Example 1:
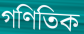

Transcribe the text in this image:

গণিতিক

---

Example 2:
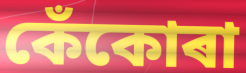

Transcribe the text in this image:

কেঁকোৰা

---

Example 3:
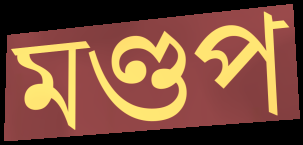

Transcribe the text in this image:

মণ্ডপ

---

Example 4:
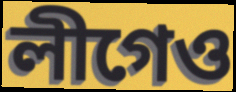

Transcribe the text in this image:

লীগেও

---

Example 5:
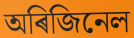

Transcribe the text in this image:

অৰিজিনেল